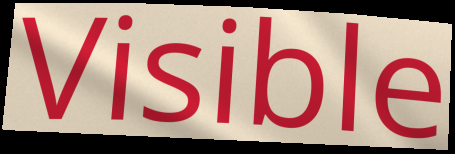
Visible